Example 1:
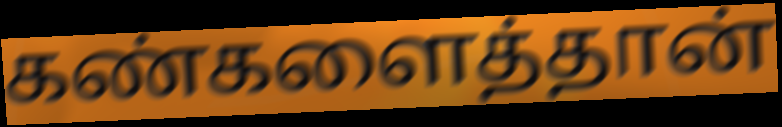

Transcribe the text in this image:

கண்களைத்தான்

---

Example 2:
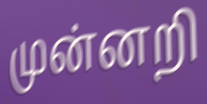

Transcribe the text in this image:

முன்னறி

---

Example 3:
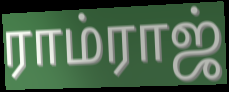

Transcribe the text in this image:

ராம்ராஜ்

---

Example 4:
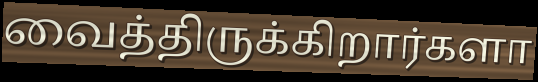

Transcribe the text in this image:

வைத்திருக்கிறார்களா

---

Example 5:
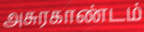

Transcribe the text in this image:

அசுரகாண்டம்